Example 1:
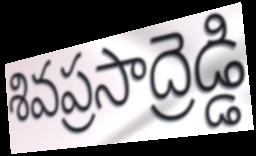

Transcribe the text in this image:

శివప్రసాద్రెడ్డి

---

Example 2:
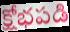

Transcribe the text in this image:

క్షోభపడి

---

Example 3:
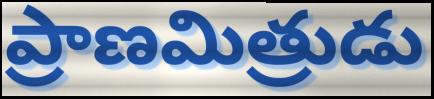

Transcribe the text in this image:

ప్రాణమిత్రుడు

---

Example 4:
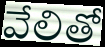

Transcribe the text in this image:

వేలితో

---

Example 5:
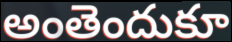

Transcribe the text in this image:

అంతెందుకూ